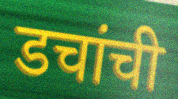
डचांची